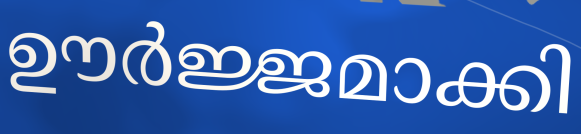
ഊർജ്ജമാക്കി